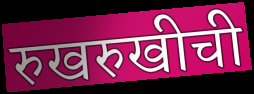
रुखरुखीची